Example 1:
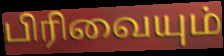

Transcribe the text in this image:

பிரிவையும்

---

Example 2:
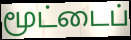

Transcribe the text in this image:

மூட்டைப்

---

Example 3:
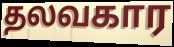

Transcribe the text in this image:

தலவகார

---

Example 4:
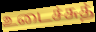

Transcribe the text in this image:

உடைச்சுத்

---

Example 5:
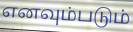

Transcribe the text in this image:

எனவும்படும்